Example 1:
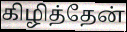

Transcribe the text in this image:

கிழித்தேன்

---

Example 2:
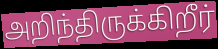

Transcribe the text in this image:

அறிந்திருக்கிறீர்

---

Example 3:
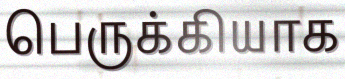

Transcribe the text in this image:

பெருக்கியாக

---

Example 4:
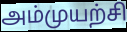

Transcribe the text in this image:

அம்முயற்சி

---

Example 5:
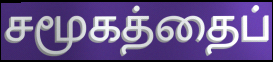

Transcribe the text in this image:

சமூகத்தைப்